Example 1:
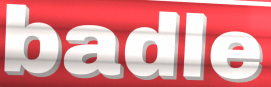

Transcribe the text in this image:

badle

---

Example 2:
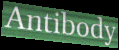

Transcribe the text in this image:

Antibody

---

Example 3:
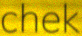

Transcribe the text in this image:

chek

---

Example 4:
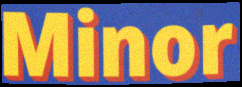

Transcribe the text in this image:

Minor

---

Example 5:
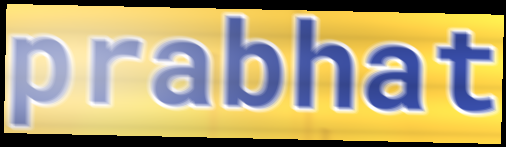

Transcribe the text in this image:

prabhat